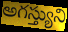
అగస్త్యుని